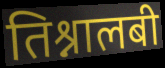
तिश्नालबी